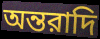
অন্তরাদি